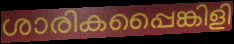
ശാരികപ്പൈങ്കിളി